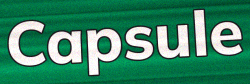
Capsule